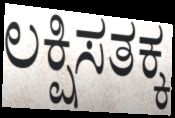
ಲಕ್ಷಿಸತಕ್ಕ